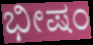
ಭೀಷಂ